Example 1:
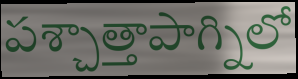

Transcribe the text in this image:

పశ్చాత్తాపాగ్నిలో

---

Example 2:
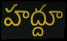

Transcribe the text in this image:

హద్దూ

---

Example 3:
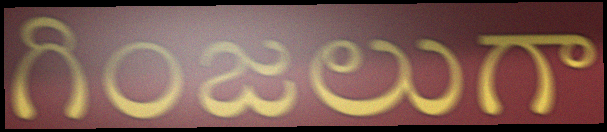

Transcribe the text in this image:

గింజలుగా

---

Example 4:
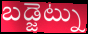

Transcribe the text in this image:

బడ్జెట్ను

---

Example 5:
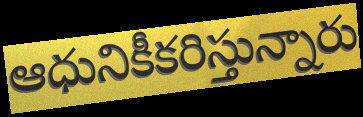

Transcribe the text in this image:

ఆధునికీకరిస్తున్నారు